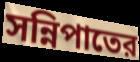
সন্নিপাতের